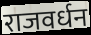
राजवर्धन